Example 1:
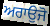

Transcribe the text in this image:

ਅਰਾਉਜੋ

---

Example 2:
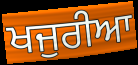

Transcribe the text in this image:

ਖਜੁਰੀਆ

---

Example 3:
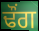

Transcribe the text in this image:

ਢੌਂਗ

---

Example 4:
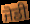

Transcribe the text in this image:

ਜੋਡੀ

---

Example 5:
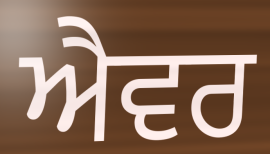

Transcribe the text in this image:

ਐਵਰ